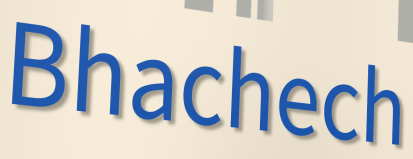
Bhachech